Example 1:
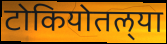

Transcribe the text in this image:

टोकियोतल्या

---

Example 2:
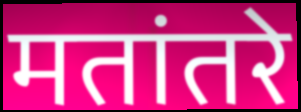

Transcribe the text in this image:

मतांतरे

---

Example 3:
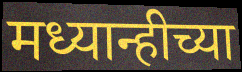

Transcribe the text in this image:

मध्यान्हीच्या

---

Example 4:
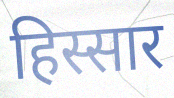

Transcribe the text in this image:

हिस्सार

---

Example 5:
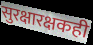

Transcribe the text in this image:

सुरक्षारक्षकही